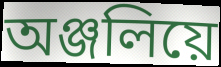
অঞ্জলিয়ে